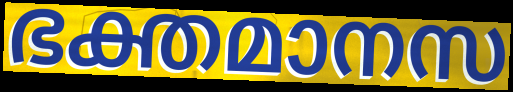
ഭക്തമാനസ